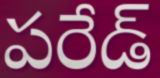
పరేడ్